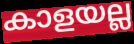
കാളയല്ല